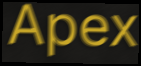
Apex